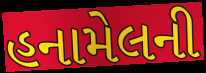
હનામેલની